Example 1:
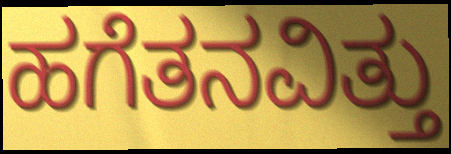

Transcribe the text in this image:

ಹಗೆತನವಿತ್ತು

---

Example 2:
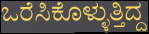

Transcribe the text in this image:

ಒರೆಸಿಕೊಳ್ಳುತ್ತಿದ್ದ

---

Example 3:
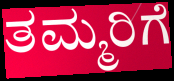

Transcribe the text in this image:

ತಮ್ಮರಿಗೆ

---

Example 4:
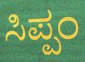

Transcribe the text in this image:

ಸಿಪ್ಪಂ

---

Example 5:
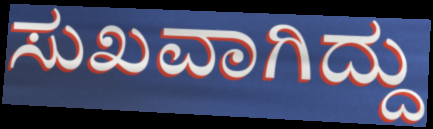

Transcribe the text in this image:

ಸುಖವಾಗಿದ್ದು